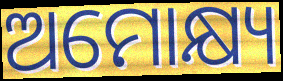
ଅମୋକ୍ଷ୍ୟ